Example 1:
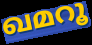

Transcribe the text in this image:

ഖമറൂ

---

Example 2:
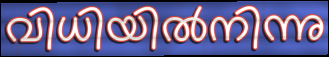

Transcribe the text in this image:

വിധിയിൽനിന്നു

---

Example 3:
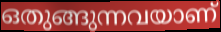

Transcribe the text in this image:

ഒതുങ്ങുന്നവയാണ്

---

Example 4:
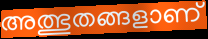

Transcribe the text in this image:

അത്ഭുതങ്ങളാണ്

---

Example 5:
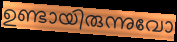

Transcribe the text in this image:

ഉണ്ടായിരുന്നുവോ